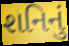
શનિનું